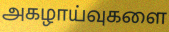
அகழாய்வுகளை